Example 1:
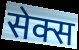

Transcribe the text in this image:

सेक्स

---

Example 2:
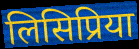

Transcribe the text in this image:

लिसिप्रिया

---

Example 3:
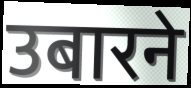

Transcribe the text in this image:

उबारने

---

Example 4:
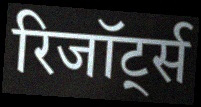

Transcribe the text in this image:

रिजॉर्ट्स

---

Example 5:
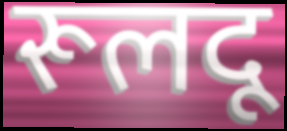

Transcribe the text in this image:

रूलदू